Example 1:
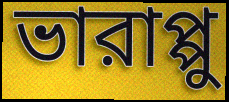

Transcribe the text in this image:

ভারাপ্পু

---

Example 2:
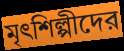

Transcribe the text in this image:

মৃৎশিল্পীদের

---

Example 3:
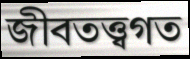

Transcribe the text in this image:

জীবতত্ত্বগত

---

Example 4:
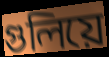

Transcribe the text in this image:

গুলিয়ে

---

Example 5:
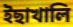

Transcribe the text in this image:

ইছাখালি